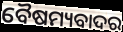
ବୈଷମ୍ୟବାଦର